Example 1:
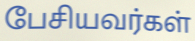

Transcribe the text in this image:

பேசியவர்கள்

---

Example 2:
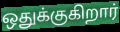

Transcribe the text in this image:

ஒதுக்குகிறார்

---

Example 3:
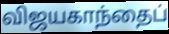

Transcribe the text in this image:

விஜயகாந்தைப்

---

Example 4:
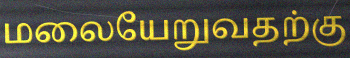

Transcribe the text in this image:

மலையேறுவதற்கு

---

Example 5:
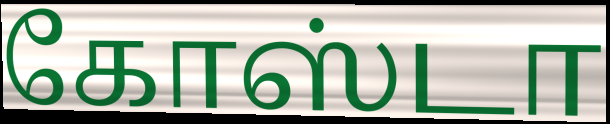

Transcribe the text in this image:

கோஸ்டா